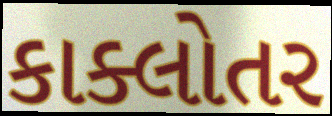
કાક્લોતર